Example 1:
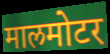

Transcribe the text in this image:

मालमोटर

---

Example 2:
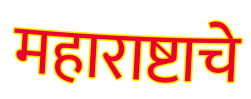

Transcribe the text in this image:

महाराष्टाचे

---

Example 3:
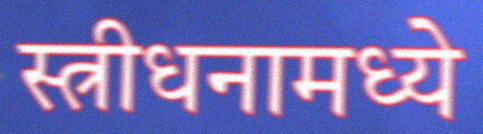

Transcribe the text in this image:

स्त्रीधनामध्ये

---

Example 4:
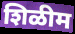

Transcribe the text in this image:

शिळीम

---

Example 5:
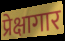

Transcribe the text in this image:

प्रेक्षागार